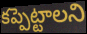
కప్పెట్టాలని